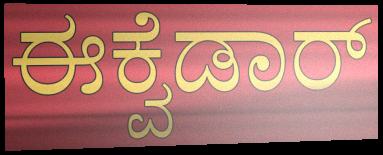
ಈಕ್ವೆಡಾರ್